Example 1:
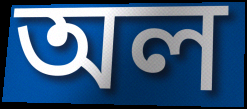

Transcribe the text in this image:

অল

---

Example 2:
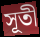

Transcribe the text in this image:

সূতী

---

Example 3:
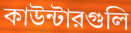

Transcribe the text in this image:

কাউন্টারগুলি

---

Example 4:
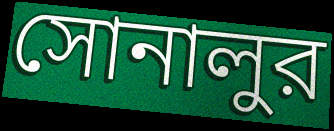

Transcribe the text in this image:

সোনালুর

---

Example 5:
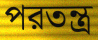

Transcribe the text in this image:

পরতন্ত্র